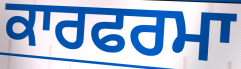
ਕਾਰਫਰਮਾ